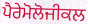
ਪੈਰੇਮੋਲੋਜੀਕਲ